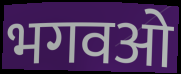
भगवओ